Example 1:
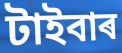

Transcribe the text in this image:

টাইবাৰ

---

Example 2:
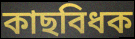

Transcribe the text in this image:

কাছবিধক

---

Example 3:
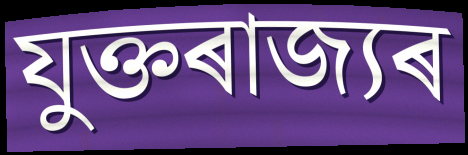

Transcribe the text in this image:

যুক্তৰাজ্যৰ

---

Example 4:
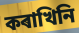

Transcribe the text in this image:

কৰাখিনি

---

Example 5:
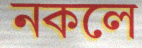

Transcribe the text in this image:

নকলে